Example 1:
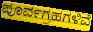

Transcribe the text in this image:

ಪೂರ್ವಗ್ರಹಗಳಿವೆ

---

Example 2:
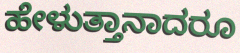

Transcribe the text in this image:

ಹೇಳುತ್ತಾನಾದರೂ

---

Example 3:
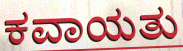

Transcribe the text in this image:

ಕವಾಯತು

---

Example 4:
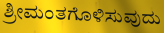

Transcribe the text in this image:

ಶ್ರೀಮಂತಗೊಳಿಸುವುದು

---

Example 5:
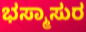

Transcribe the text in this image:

ಭಸ್ಮಾಸುರ